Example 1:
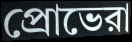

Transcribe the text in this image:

প্রোভেরা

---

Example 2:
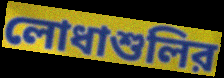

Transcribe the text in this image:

লোধাশুলির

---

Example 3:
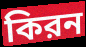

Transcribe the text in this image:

কিরন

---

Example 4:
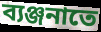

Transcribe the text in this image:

ব্যঞ্জনাতে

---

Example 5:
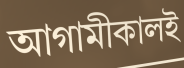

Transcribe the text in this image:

আগামীকালই